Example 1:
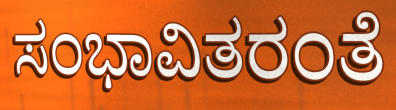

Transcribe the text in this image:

ಸಂಭಾವಿತರಂತೆ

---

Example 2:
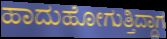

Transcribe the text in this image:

ಹಾದುಹೋಗುತ್ತಿದ್ದಾಗ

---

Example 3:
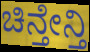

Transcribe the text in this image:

ಚಿನ್ತೇನ್ತಿ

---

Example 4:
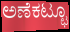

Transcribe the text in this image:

ಅಣೆಕಟ್ಟೂ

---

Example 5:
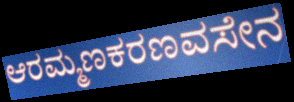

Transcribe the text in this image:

ಆರಮ್ಮಣಕರಣವಸೇನ